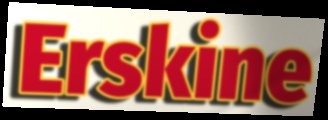
Erskine